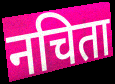
नचिता